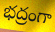
భద్రంగా